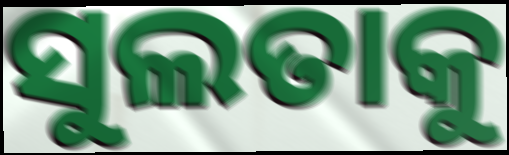
ସୁଲତାକୁ